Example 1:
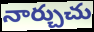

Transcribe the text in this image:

నార్చుచు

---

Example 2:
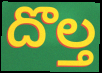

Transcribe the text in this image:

దొల్త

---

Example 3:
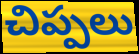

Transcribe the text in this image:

చిప్పలు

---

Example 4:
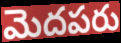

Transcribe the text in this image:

మెదపరు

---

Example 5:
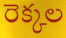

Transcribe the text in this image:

రెక్కల